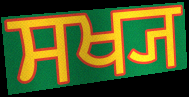
ਸਖ੍ਯ